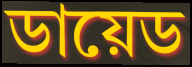
ডায়েড